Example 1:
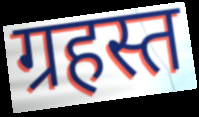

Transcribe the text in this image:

ग्रहस्त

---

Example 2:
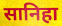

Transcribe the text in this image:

सानिहा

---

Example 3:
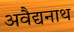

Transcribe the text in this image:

अवैद्यनाथ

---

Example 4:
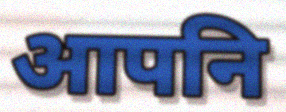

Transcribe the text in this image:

आपनि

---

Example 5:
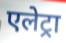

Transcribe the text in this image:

एलेट्रा